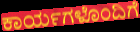
ಕಾರ್ಯಗಳೊಂದಿಗೆ